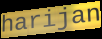
harijan